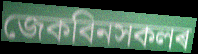
জেকবিনসকলৰ